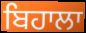
ਬਿਹਾਲਾ